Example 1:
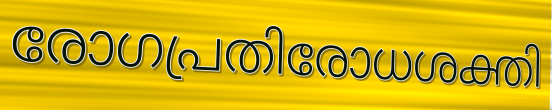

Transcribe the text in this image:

രോഗപ്രതിരോധശക്തി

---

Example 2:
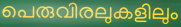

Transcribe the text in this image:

പെരുവിരലുകളിലും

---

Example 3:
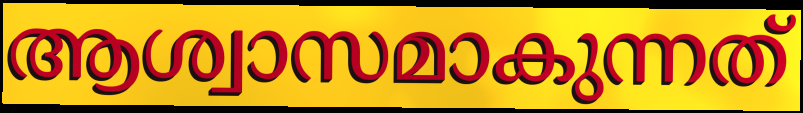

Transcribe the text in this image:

ആശ്വാസമാകുന്നത്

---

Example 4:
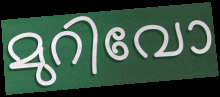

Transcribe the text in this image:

മുറിവോ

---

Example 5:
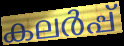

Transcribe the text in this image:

കലർപ്പ്